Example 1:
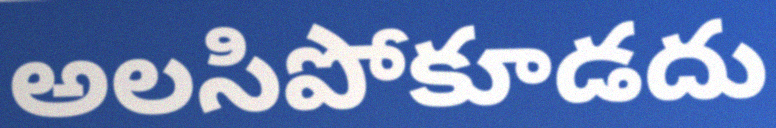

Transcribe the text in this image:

అలసిపోకూడదు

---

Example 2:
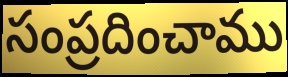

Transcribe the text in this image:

సంప్రదించాము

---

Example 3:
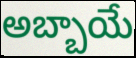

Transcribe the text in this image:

అబ్బాయే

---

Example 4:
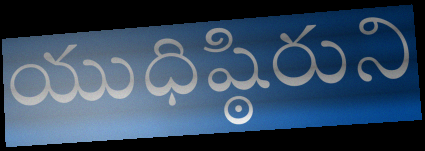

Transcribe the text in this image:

యుధిష్ఠిరుని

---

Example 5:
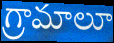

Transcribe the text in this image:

గ్రామాలూ